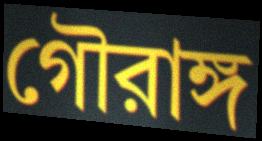
গৌরাঙ্গ